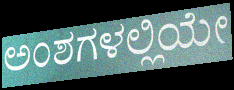
ಅಂಶಗಳಲ್ಲಿಯೇ